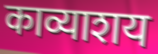
काव्याशय